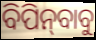
ବିପିନ୍‍ବାବୁ